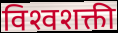
विश्वशक्ती